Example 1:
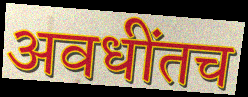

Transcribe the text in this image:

अवधींतच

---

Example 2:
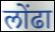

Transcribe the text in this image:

लोंढा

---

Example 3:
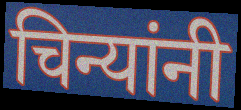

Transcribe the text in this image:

चिन्यांनी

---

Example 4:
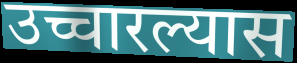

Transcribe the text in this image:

उच्चारल्यास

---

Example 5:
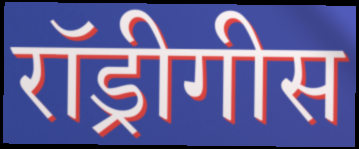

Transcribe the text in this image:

रॉड्रीगीस